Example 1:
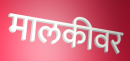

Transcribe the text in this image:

मालकीवर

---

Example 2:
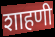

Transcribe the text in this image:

शाहणी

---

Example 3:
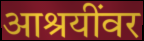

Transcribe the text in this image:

आश्रयींवर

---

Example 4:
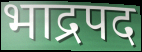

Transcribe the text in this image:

भाद्रपद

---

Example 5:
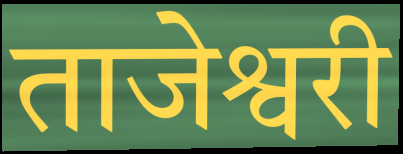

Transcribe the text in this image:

ताजेश्वरी